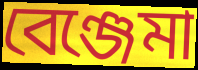
বেঞ্জেমা